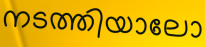
നടത്തിയാലോ